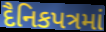
દૈનિકપત્રમાં